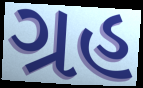
ગ્રહ